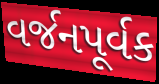
વર્જનપૂર્વક